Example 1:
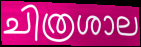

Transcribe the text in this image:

ചിത്രശാല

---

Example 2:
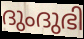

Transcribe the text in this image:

ദുംദുഭി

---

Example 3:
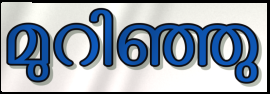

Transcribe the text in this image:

മുറിഞ്ഞു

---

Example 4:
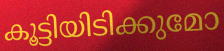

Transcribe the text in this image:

കൂട്ടിയിടിക്കുമോ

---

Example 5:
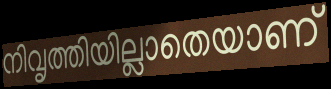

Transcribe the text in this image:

നിവൃത്തിയില്ലാതെയാണ്